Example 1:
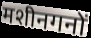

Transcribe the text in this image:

मशीनगनों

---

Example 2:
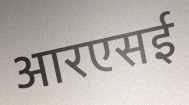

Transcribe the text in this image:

आरएसई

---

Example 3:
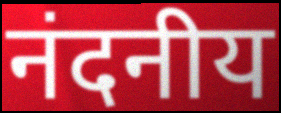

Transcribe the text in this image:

नंदनीय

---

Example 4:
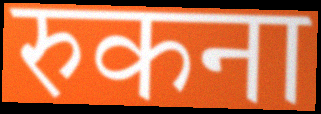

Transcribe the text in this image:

रुकना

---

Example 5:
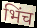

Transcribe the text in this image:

भिंच